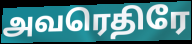
அவரெதிரே